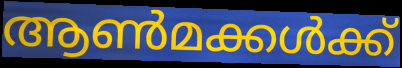
ആൺമക്കൾക്ക്